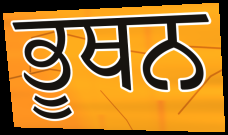
ਭੂਥਨ